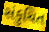
સંકુચિત